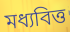
মধ্যবিত্ত